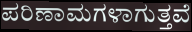
ಪರಿಣಾಮಗಳಾಗುತ್ತವೆ